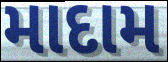
માદામ